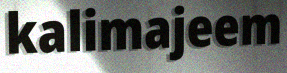
kalimajeem